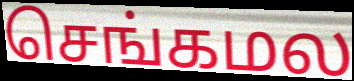
செங்கமல